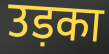
उड़का